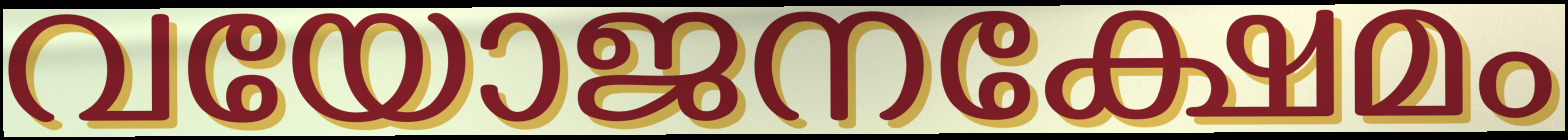
വയോജനക്ഷേമം